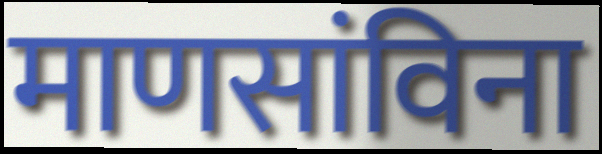
माणसांविना